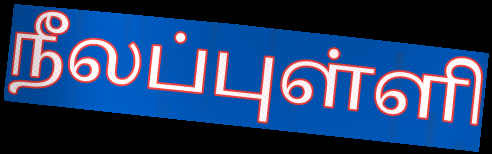
நீலப்புள்ளி